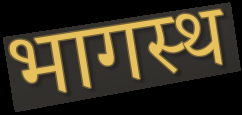
भागस्थ